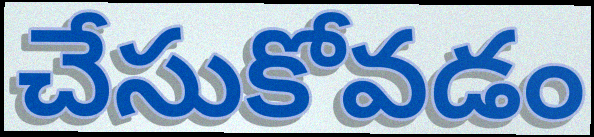
చేసుకోవడం